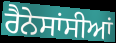
ਰੈਨੇਸਾਂਸੀਆਂ